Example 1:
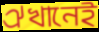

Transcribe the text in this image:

ঐখানেই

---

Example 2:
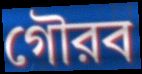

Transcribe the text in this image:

গৌরব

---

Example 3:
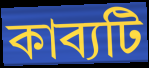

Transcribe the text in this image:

কাব্যটি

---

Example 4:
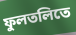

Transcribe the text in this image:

ফুলতলিতে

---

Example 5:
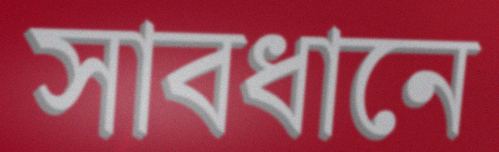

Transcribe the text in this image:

সাবধানে